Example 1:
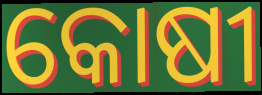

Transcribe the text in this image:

କୋଷୀ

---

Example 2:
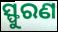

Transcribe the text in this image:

ସ୍ଫୁରଣ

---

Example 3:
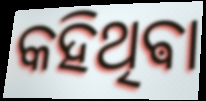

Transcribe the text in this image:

କହିଥିଵା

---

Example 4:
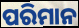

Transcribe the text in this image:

ପରିମାନ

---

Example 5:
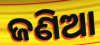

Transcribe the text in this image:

ଜଣିଆ